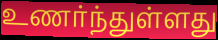
உணர்ந்துள்ளது